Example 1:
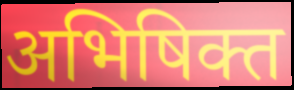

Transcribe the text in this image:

अभिषिक्त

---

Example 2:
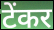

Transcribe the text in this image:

टेंकर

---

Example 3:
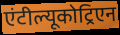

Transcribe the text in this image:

एंटील्यूकोट्रिएन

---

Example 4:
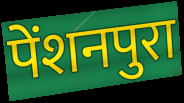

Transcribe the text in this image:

पेंशनपुरा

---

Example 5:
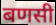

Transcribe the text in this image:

बणसी